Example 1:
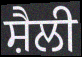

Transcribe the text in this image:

ਸ਼ੈਲੀ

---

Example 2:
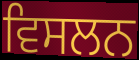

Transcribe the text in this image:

ਵਿਸਲਨ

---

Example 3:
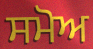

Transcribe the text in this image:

ਸਮੋਅ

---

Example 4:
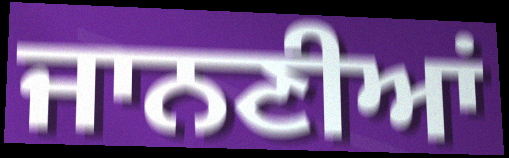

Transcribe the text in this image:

ਜਾਨਣੀਆਂ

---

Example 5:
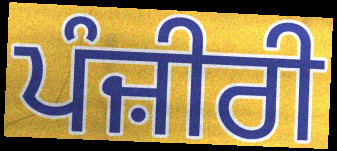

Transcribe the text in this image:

ਪੰਜ਼ੀਰੀ